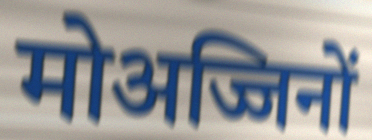
मोअज्जिनों